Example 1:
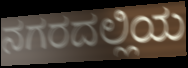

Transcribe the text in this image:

ನಗರದಲ್ಲಿಯ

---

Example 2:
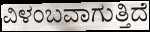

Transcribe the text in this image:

ವಿಳಂಬವಾಗುತ್ತಿದೆ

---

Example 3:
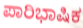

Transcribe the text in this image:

ಪಾರಿಭಾಷಿಕ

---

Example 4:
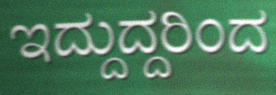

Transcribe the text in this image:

ಇದ್ದುದ್ದರಿಂದ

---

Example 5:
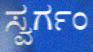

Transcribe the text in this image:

ಸ್ವರ್ಗಂ